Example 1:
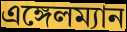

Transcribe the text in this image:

এঙ্গেলম্যান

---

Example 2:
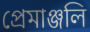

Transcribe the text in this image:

প্রেমাঞ্জলি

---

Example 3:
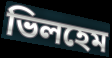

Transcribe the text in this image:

ভিলহেম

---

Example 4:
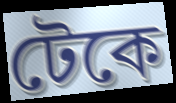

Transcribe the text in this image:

টেকে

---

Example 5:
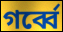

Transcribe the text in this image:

গর্ব্বে